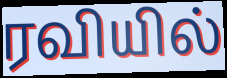
ரவியில்